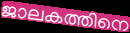
ജാലകത്തിനെ